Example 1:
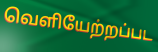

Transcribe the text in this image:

வெளியேற்றப்பட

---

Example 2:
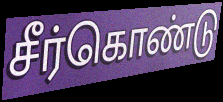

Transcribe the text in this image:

சீர்கொண்டு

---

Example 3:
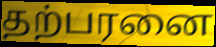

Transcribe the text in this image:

தற்பரனை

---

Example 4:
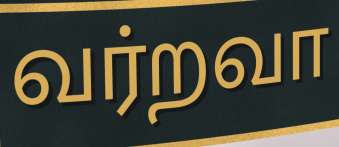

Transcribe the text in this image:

வர்றவா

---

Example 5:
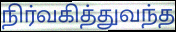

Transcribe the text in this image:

நிர்வகித்துவந்த